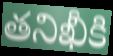
తనిఖీకి